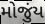
મોજુંય